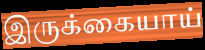
இருக்கையாய்